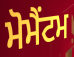
ਮੋਮੈਂਟਮ